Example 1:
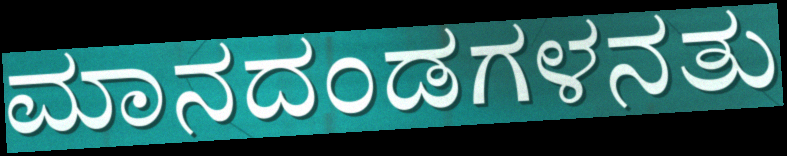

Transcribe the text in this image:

ಮಾನದಂಡಗಳನತು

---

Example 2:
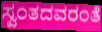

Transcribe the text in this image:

ಸ್ವಂತದವರಂತೆ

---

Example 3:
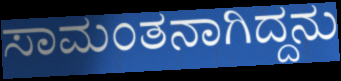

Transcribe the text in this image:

ಸಾಮಂತನಾಗಿದ್ದನು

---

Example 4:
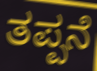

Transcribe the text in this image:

ತಪ್ಪನೆ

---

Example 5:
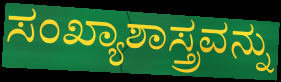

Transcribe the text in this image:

ಸಂಖ್ಯಾಶಾಸ್ತ್ರವನ್ನು